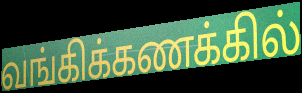
வங்கிக்கணக்கில்